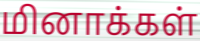
மினாக்கள்